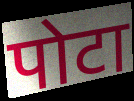
पोटा